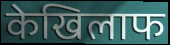
केखिलाफ